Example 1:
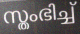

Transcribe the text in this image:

സ്തംഭിച്ച്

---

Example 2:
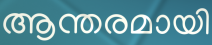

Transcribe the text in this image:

ആന്തരമായി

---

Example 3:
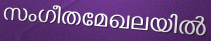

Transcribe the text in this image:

സംഗീതമേഖലയിൽ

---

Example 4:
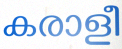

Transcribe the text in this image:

കരാളീ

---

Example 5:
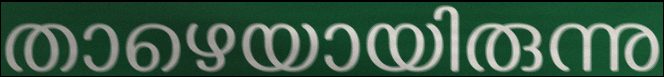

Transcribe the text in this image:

താഴെയായിരുന്നു